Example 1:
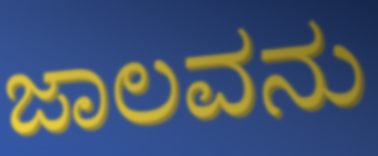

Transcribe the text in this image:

ಜಾಲವನು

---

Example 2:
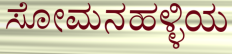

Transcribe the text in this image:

ಸೋಮನಹಳ್ಳಿಯ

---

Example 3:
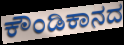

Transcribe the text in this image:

ಕೌಂಡಿಕಾನದ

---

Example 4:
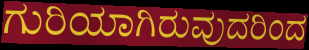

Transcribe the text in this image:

ಗುರಿಯಾಗಿರುವುದರಿಂದ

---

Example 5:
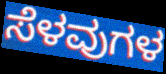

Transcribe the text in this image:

ಸೆಳವುಗಳ